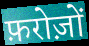
फ़रोज़ों